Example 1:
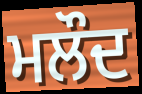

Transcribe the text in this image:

ਮਲੌਦ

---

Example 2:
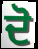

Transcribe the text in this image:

ਦੋ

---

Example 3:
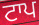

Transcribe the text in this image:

ਟਾਪ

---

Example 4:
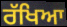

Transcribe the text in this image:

ਰੱਖਿਆ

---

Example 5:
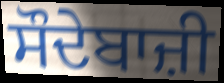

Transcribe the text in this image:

ਸੌਦੇਬਾਜ਼ੀ